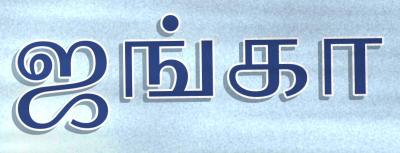
ஜங்கா